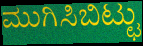
ಮುಗಿಸಿಬಿಟ್ಟು